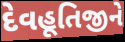
દેવહૂતિજીને